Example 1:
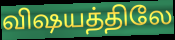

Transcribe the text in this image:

விஷயத்திலே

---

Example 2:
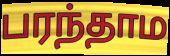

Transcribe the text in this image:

பரந்தாம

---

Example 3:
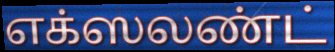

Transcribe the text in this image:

எக்ஸலண்ட்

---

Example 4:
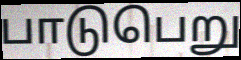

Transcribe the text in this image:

பாடுபெறு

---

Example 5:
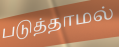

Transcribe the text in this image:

படுத்தாமல்